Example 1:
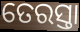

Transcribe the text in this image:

ତେରସ୍ତା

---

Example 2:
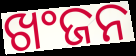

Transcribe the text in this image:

ଖଂଜନ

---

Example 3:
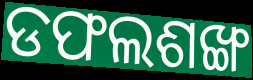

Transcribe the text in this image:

ଡଫଲଶଙ୍ଖ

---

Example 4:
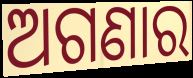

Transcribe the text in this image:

ଅଗଣାର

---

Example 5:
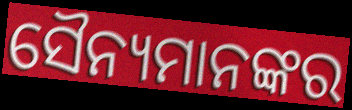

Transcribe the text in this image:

ସୈନ୍ୟମାନଙ୍କର